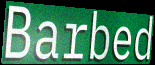
Barbed